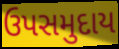
ઉપસમુદાય